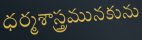
ధర్మశాస్త్రమునకును